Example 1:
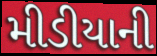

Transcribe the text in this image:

મીડીયાની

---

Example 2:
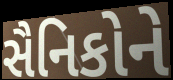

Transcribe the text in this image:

સૈનિકોને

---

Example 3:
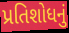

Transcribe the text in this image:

પ્રતિશોધનું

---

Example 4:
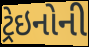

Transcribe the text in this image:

ટ્રેઇનોની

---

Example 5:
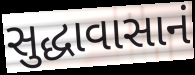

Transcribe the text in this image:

સુદ્ધાવાસાનં